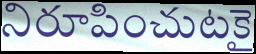
నిరూపించుటకై